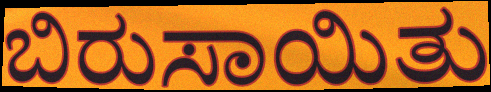
ಬಿರುಸಾಯಿತು